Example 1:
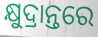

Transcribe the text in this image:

କ୍ଷୁଦ୍ରାନ୍ତରେ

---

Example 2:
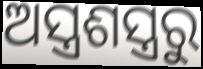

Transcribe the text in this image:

ଅସ୍ତ୍ରଶସ୍ତ୍ରରୁ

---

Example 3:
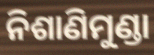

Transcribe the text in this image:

ନିଶାଣିମୁଣ୍ଡା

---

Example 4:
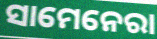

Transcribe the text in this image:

ସାମେନେରା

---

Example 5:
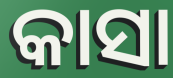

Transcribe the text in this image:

କାସା